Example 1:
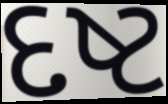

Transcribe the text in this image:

દષ્ટ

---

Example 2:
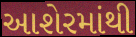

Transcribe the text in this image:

આશેરમાંથી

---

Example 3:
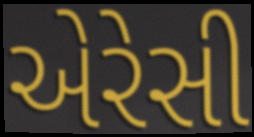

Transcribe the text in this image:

એરેસી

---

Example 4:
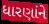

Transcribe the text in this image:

ધારણાંને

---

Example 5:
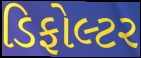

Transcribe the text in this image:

ડિફોલ્ટર